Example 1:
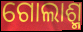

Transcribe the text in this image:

ଗୋଲାଶ୍ମ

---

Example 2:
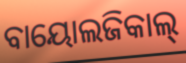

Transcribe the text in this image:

ବାୟୋଲଜିକାଲ୍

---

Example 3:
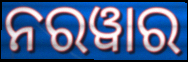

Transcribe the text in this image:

ନରୱାର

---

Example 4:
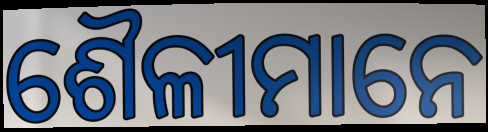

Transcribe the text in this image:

ଶୈଳୀମାନେ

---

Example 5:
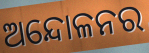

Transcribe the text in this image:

ଅନ୍ଦୋଳନର